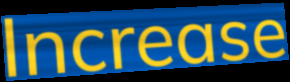
Increase